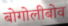
बोगोलीबोव